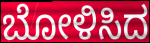
ಬೋಳಿಸಿದ